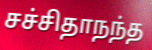
சச்சிதாநந்த